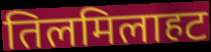
तिलमिलाहट